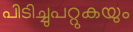
പിടിച്ചുപറ്റുകയും